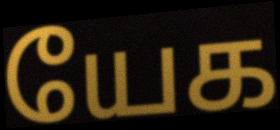
யேக